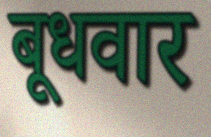
बूधवार